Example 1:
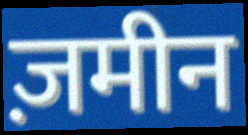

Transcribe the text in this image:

ज़मीन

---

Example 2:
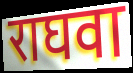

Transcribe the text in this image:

राघवा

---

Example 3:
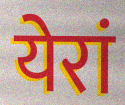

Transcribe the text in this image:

येरां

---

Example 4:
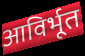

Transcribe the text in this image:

आविर्भूत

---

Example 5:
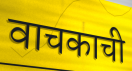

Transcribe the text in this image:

वाचकाची